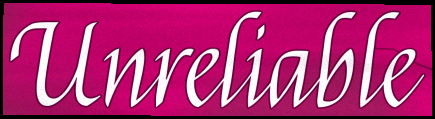
Unreliable